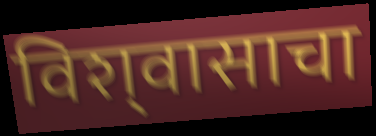
विश्वासाचा